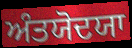
ਅੰਤਯੋਦਯਾ